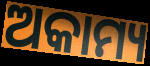
ଅକାମ୍ୟ